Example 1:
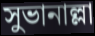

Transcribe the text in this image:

সুভানাল্লা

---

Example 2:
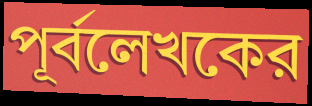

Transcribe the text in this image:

পূর্বলেখকের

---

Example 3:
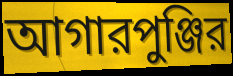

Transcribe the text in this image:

আগারপুঞ্জির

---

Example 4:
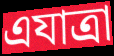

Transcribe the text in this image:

এযাত্রা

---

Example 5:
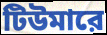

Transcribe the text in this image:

টিউমারে